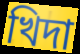
খিদা